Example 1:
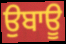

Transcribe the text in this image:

ਉਬਾਊ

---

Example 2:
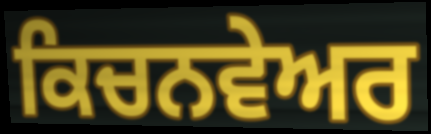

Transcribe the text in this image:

ਕਿਚਨਵੇਅਰ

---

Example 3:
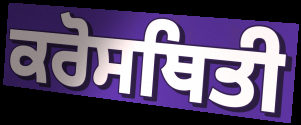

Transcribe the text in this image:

ਕਰੋਸਥਿਤੀ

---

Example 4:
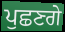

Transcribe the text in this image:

ਪੁਛਣਗੇ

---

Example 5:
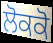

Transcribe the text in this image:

ਲੋਕਕੋ